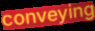
conveying